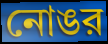
নোঙর